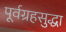
पूर्वग्रहसुद्धा